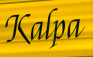
Kalpa